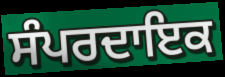
ਸੰਪਰਦਾਇਕ